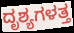
ದೃಶ್ಯಗಳತ್ತ